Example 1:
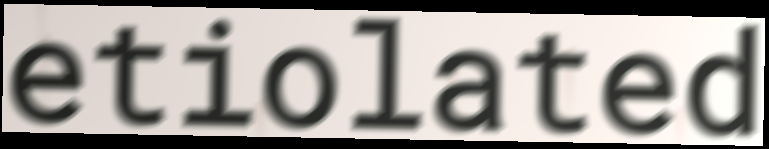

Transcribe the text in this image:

etiolated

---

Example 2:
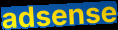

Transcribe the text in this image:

adsense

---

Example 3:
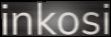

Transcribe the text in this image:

inkosi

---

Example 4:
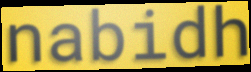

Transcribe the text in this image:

nabidh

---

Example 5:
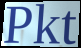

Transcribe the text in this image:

Pkt